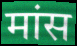
मांस